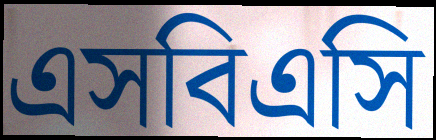
এসবিএসি